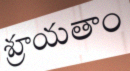
శ్రూయతాం